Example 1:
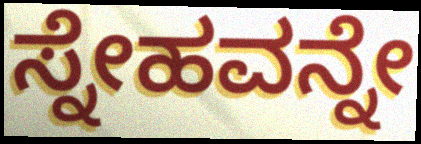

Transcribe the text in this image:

ಸ್ನೇಹವನ್ನೇ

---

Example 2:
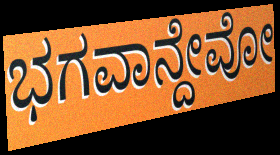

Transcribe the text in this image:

ಭಗವಾನ್ದೇವೋ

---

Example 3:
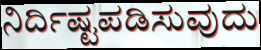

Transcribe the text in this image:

ನಿರ್ದಿಷ್ಟಪಡಿಸುವುದು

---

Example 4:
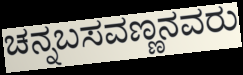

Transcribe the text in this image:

ಚನ್ನಬಸವಣ್ಣನವರು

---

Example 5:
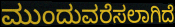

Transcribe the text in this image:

ಮುಂದುವರೆಸಲಾಗಿದೆ